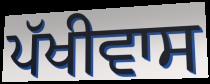
ਪੱਖੀਵਾਸ